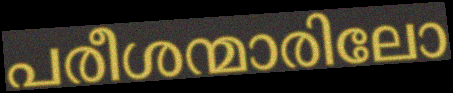
പരീശന്മാരിലോ